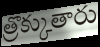
త్రొక్కుతారు